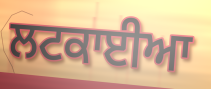
ਲਟਕਾਈਆ